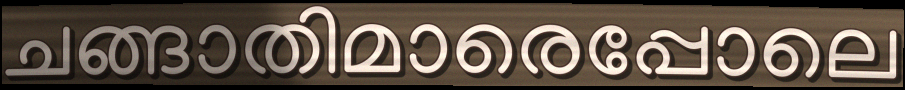
ചങ്ങാതിമാരെപ്പോലെ